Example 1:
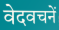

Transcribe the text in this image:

वेदवचनें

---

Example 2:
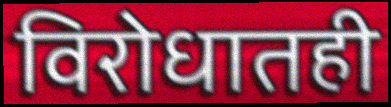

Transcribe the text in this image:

विरोधातही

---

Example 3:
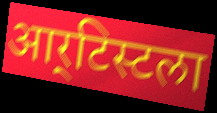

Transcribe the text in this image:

आर्टिस्टला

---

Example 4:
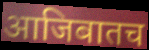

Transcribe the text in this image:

आजिबातच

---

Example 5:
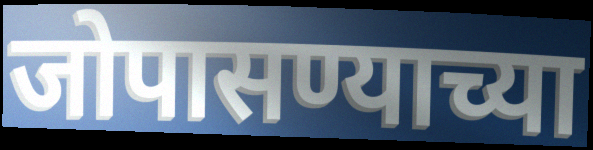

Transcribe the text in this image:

जोपासण्याच्या